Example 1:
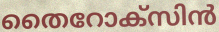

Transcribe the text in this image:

തൈറോക്സിൻ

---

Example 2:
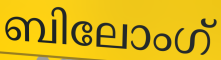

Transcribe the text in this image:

ബിലോംഗ്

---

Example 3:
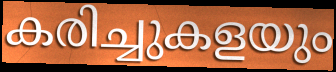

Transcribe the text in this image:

കരിച്ചുകളയും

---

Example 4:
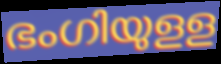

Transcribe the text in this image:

ഭംഗിയുളള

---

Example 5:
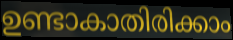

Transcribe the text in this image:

ഉണ്ടാകാതിരിക്കാം